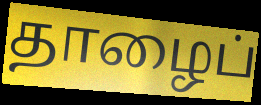
தாழைப்